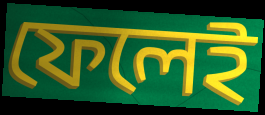
ফেলেই